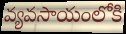
వ్యవసాయంలోకి